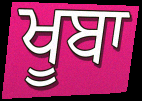
ਖੂਬਾ